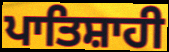
ਪਾਤਿਸ਼ਾਹੀ